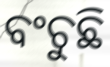
ବଂଚୁଛି